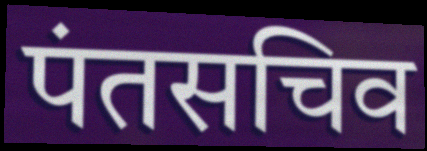
पंतसचिव